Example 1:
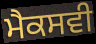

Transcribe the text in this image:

ਮੈਕਸਵੀ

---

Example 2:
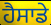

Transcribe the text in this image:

ਹੈਸਾਡੇ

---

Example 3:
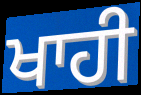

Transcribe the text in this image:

ਖਾਹੀ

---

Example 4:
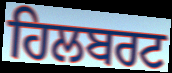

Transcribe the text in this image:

ਹਿਲਬਰਟ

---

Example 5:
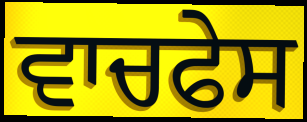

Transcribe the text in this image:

ਵਾਚਫੇਸ